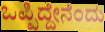
ಒಪ್ಪಿದ್ದೇನೆಂದು